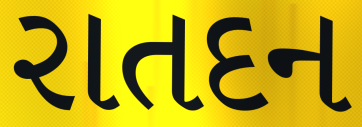
રાતદન